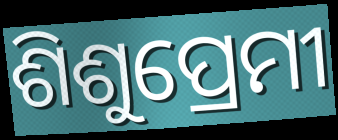
ଶିଶୁପ୍ରେମୀ